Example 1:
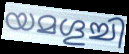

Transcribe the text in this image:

യമഗൂച്ചി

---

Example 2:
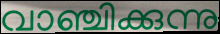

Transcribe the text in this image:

വാഞ്ചിക്കുന്നു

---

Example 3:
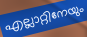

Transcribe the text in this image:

എല്ലാറ്റിനേയും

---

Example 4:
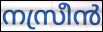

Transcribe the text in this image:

നസ്രീൻ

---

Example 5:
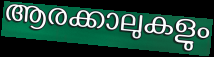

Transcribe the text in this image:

ആരക്കാലുകളും